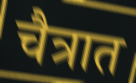
चैत्रात